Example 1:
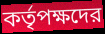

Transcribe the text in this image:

কর্তৃপক্ষদের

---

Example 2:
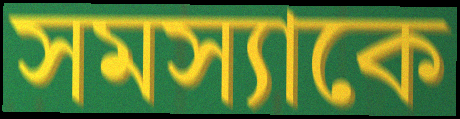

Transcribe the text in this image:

সমস্যাকে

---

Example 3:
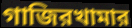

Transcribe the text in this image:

গাজিরখামার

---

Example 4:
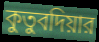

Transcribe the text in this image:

কুতুবদিয়ার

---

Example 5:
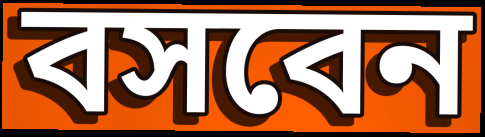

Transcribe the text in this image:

বসবেন